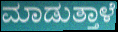
ಮಾಡುತ್ತಾಳೆ